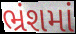
ભ્રંશમાં